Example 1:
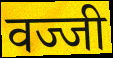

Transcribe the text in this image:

वज्जी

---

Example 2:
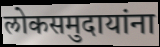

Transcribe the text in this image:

लोकसमुदायांना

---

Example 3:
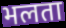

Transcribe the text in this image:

भलता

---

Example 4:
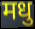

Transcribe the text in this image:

मधु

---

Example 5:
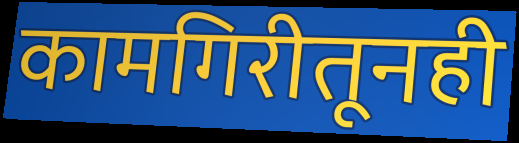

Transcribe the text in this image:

कामगिरीतूनही